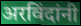
अरविंदांनी